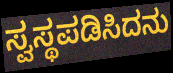
ಸ್ವಸ್ಥಪಡಿಸಿದನು